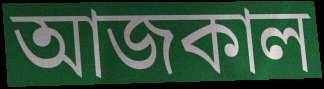
আজকাল